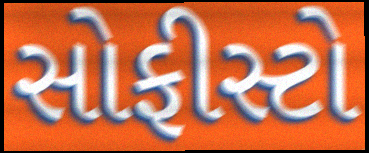
સોફીસ્ટો